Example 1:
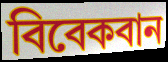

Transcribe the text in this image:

বিবেকবান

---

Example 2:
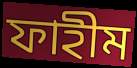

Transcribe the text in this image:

ফাহীম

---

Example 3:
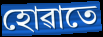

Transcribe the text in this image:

হোৱাতে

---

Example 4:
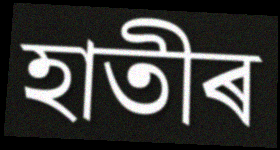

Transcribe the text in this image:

হাতীৰ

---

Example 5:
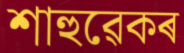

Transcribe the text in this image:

শাহুৱেকৰ